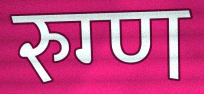
रुग्ण